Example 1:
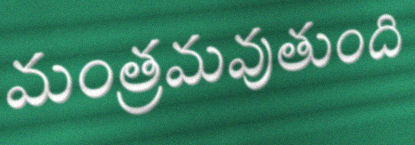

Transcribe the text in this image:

మంత్రమవుతుంది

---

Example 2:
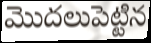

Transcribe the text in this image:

మొదలుపెట్టిన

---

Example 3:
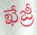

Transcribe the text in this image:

ఖేజ్రీ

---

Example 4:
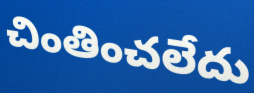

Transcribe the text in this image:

చింతించలేదు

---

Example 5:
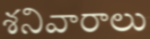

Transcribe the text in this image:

శనివారాలు